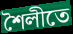
শৈলীতে